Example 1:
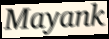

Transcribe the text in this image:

Mayank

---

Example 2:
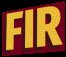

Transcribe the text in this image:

FIR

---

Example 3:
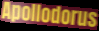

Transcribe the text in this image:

Apollodorus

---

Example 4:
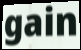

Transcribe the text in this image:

gain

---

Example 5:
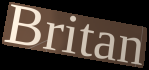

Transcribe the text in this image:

Britan